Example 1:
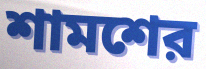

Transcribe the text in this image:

শামশের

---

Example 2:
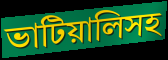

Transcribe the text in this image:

ভাটিয়ালিসহ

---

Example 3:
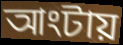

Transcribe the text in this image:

আংটায়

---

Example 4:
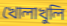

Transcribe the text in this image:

খোলাখুলি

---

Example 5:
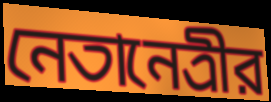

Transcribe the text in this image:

নেতানেত্রীর